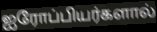
ஐரோப்பியர்களால்